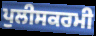
ਪੁਲੀਸਕਰਮੀ